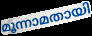
മൂന്നാമതായി